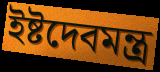
ইষ্টদেবমন্ত্র